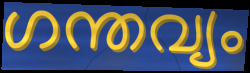
ഗന്തവ്യം